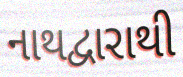
નાથદ્વારાથી